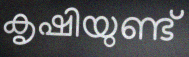
കൃഷിയുണ്ട്